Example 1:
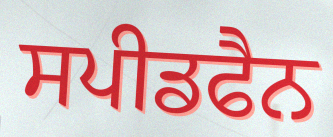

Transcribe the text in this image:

ਸਪੀਡਫੈਨ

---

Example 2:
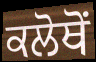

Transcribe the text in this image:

ਕਲੋਥੋਂ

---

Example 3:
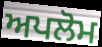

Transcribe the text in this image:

ਅਪਲੋਮ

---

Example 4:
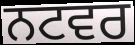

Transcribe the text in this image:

ਨਟਵਰ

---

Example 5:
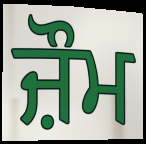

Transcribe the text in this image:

ਜ਼ੌਮ